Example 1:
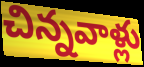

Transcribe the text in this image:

చిన్నవాళ్లు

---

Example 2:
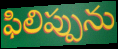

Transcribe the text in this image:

ఫిలిప్పును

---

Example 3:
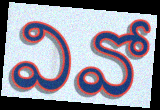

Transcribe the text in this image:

వివో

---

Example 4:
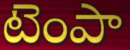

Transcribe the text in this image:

టెంపా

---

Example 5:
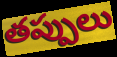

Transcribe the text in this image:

తప్పులు